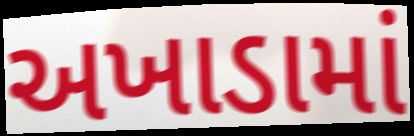
અખાડામાં